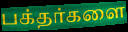
பக்தர்களை